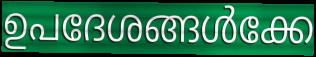
ഉപദേശങ്ങൾക്കേ